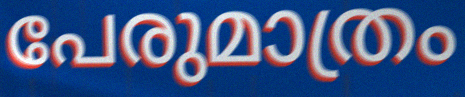
പേരുമാത്രം